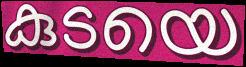
കുടയെ